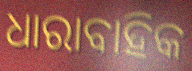
ଧାରାବାହିକ